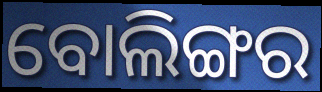
ବୋଲିଙ୍ଗର